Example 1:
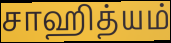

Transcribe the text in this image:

சாஹித்யம்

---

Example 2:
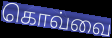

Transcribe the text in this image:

கொவ்வை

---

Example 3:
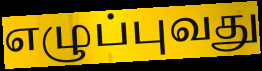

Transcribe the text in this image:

எழுப்புவது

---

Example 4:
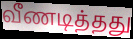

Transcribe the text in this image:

வீணடித்தது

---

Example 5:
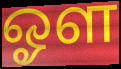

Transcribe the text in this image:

ஓள